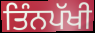
ਤਿੰਨਪੱਖੀ